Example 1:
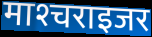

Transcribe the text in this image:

माश्चराइजर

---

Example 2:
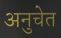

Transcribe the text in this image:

अनुचेत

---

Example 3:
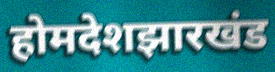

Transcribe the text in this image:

होमदेशझारखंड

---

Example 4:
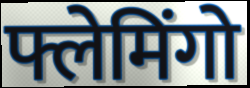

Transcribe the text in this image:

फ्लेमिंगो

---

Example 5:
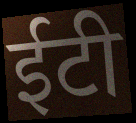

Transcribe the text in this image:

ईटी